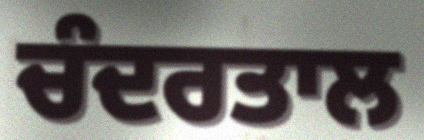
ਚੰਦਰਤਾਲ